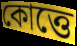
কোত্তে